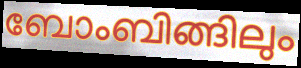
ബോംബിങ്ങിലും